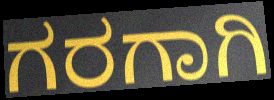
ಗರಗಾಗಿ